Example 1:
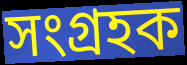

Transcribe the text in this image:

সংগ্ৰহক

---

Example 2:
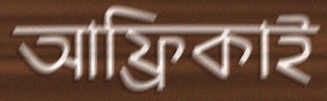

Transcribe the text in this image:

আফ্ৰিকাই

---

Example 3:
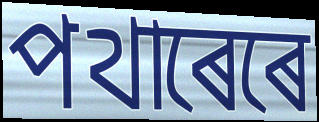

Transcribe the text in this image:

পথাৰেৰে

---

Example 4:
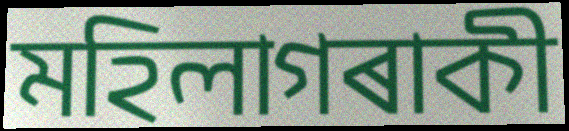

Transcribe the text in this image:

মহিলাগৰাকী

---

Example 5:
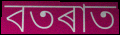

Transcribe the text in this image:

বতৰাত